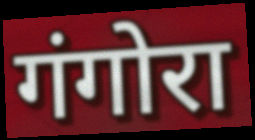
गंगोरा